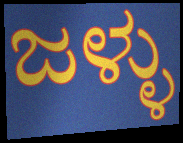
ಜಳ್ಳು